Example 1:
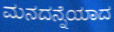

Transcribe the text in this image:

ಮನದನ್ನೆಯಾದ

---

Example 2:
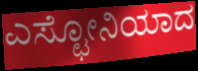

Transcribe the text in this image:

ಎಸ್ಟೋನಿಯಾದ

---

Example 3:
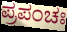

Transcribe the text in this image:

ಪ್ರಪಂಚಃ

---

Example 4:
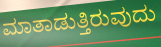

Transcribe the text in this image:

ಮಾತಾಡುತ್ತಿರುವುದು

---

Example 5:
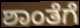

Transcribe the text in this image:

ಶಾಂತೆಗೆ